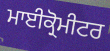
ਮਾਈਕ੍ਰੋਮੀਟਰ